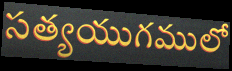
సత్యయుగములో